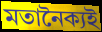
মতানৈক্যই